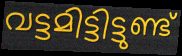
വട്ടമിട്ടിട്ടുണ്ട്